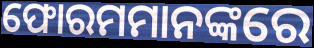
ଫୋରମମାନଙ୍କରେ